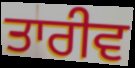
ਤਾਰੀਵ